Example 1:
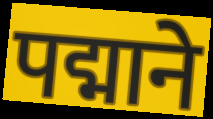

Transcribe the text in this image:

पद्माने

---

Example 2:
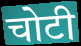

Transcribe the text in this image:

चोटी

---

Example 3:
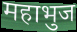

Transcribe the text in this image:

महाभुज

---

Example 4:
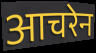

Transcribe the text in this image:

आचरेन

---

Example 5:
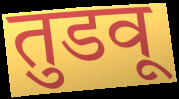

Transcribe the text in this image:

तुडवू